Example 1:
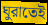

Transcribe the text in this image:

ঘুরাতেই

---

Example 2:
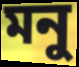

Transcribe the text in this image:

মনু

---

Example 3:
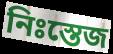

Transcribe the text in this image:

নিঃস্তেজ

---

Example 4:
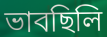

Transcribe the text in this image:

ভাবছিলি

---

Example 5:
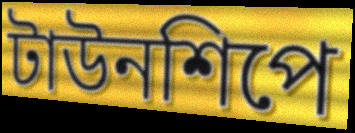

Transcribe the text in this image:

টাউনশিপে